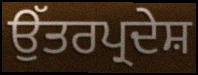
ਉੱਤਰਪ੍ਰਦੇਸ਼